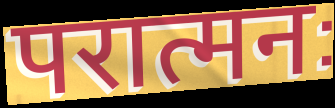
परात्मनः